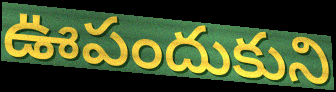
ఊపందుకుని